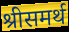
श्रीसमर्थ